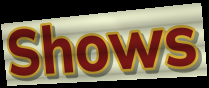
Shows